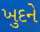
ખુદને